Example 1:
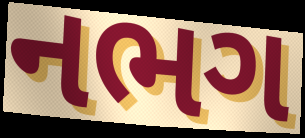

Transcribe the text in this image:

નભગ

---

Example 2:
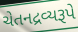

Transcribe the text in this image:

ચેતનદ્રવ્યરૂપે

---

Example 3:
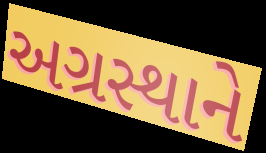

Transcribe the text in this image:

અગ્રસ્થાને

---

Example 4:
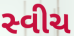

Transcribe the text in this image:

સ્વીચ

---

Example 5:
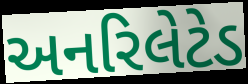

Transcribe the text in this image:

અનરિલેટેડ